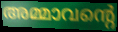
അമ്മാവന്റെ